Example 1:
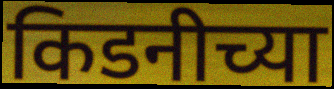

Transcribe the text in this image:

किडनीच्या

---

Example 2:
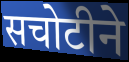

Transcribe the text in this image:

सचोटीने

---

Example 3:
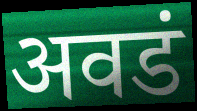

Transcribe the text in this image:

अवडं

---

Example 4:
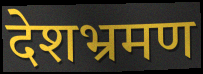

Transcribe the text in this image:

देशभ्रमण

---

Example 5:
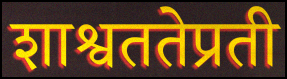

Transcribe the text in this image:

शाश्वततेप्रती